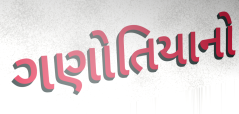
ગણોતિયાનો